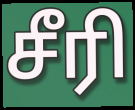
சீரி